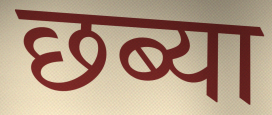
छब्या